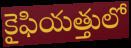
కైఫియత్తులో